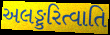
અલઙ્કરિત્વાતિ